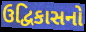
ઉદ્વિકાસનો